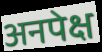
अनपेक्ष